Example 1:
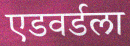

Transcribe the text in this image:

एडवर्डला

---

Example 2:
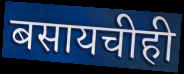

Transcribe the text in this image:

बसायचीही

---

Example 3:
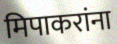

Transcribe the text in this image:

मिपाकरांना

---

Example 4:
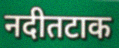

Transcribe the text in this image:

नदीतटाक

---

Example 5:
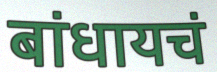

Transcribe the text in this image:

बांधायचं